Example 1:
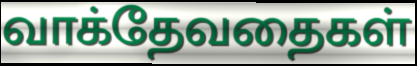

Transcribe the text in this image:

வாக்தேவதைகள்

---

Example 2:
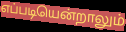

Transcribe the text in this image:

எப்படியென்றாலும்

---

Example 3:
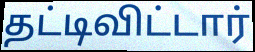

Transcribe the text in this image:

தட்டிவிட்டார்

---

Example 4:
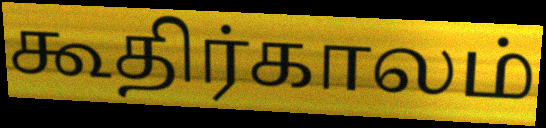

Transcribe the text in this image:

கூதிர்காலம்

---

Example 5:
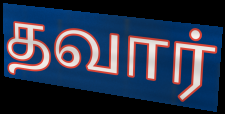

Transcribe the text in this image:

தவார்